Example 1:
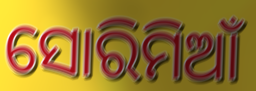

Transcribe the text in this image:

ସୋରିମିଆଁ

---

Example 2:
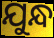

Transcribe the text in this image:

ଯୁନ୍ଧ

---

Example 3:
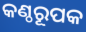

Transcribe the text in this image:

କଣ୍ଠରୂପକ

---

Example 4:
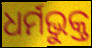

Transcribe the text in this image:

ଧର୍ମଭୁକ୍ତ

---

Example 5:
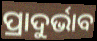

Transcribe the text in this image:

ପ୍ରାଦୁର୍ଭାବ